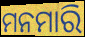
ମନମାରି